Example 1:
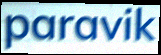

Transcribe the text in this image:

paravik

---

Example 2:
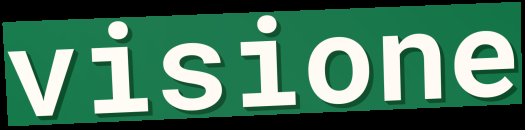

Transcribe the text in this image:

visione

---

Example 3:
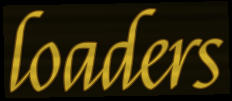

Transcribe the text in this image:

loaders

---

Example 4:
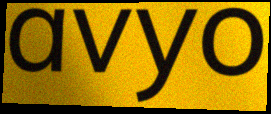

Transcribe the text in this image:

avyo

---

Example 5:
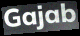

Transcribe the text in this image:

Gajab